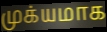
முக்யமாக